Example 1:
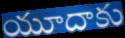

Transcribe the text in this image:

యూదాకు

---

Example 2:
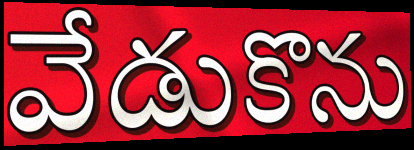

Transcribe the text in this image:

వేడుకొను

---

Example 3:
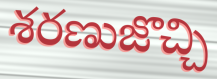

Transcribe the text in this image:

శరణుజొచ్చి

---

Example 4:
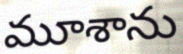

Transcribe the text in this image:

మూశాను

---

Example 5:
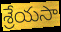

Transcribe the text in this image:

శ్రేయసా